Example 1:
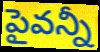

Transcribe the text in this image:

పైవన్నీ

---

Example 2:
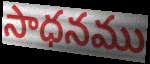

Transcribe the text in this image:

సాధనము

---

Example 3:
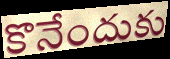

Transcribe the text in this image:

కొనేందుకు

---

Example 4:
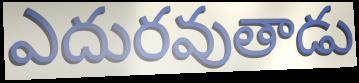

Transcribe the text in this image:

ఎదురవుతాడు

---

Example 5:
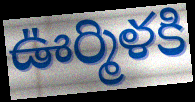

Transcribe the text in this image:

ఊర్మిళకి